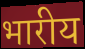
भारीय